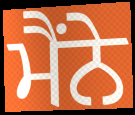
ਮੈਂਨੇ